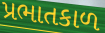
પ્રભાતકાળ